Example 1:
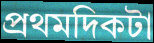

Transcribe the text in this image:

প্রথমদিকটা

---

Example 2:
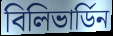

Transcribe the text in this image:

বিলিভার্ডিন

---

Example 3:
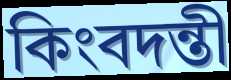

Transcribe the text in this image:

কিংবদন্তী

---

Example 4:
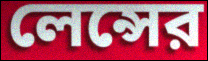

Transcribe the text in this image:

লেন্সের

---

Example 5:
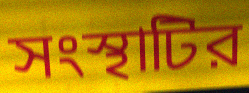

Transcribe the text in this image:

সংস্থাটির